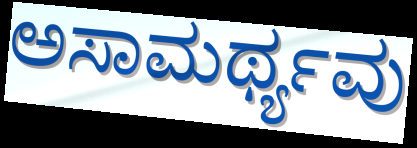
ಅಸಾಮರ್ಥ್ಯವು